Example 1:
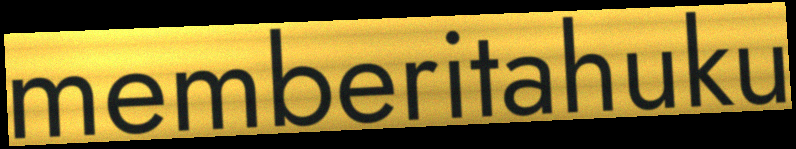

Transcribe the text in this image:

memberitahuku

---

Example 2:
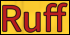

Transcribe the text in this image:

Ruff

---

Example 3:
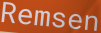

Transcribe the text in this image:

Remsen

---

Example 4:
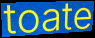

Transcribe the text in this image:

toate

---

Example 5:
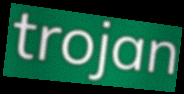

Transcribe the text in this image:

trojan